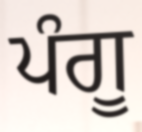
ਪੰਗੂ